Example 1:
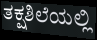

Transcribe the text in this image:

ತಕ್ಷಶಿಲೆಯಲ್ಲಿ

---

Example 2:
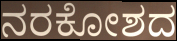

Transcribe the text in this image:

ನರಕೋಶದ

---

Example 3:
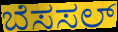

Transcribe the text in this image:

ಬೆಸಸಲ್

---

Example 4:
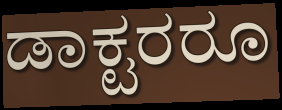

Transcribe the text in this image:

ಡಾಕ್ಟರರೂ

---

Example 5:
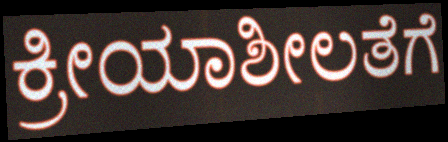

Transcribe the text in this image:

ಕ್ರೀಯಾಶೀಲತೆಗೆ